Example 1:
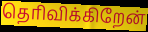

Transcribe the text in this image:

தெரிவிக்கிறேன்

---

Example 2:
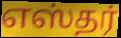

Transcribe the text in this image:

எஸ்தர்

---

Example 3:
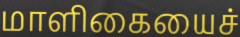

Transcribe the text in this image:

மாளிகையைச்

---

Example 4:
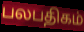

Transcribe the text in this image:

பலபதிகம்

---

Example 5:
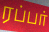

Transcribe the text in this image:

ரப்பர்